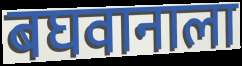
बघवानाला